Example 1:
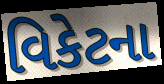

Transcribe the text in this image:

વિકેટના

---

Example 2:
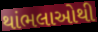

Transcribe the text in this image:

થાંભલાઓથી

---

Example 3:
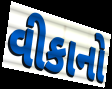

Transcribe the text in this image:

વીકાનો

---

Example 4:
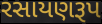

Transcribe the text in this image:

રસાયણરૂપ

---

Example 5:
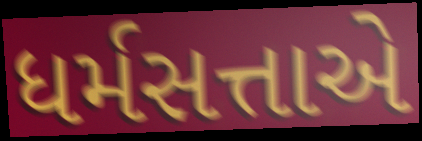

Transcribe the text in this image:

ધર્મસત્તાએ